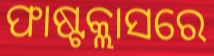
ଫାଷ୍ଟକ୍ଲାସରେ